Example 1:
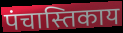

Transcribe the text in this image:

पंचास्तिकाय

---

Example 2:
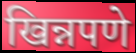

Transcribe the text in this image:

खिन्नपणे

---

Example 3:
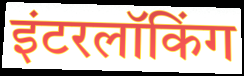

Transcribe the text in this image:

इंटरलॉकिंग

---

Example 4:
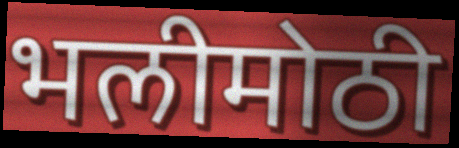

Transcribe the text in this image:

भलीमोठी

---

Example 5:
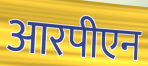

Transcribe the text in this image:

आरपीएन